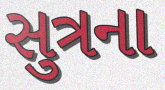
સુત્રના